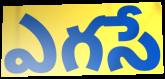
ఎగసే